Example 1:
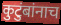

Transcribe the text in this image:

कुटुंबांनाच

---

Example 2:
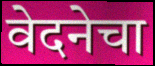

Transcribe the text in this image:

वेदनेचा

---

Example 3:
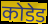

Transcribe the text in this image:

कोडेड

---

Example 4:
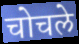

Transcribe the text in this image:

चोचले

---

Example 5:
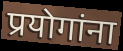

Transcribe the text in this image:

प्रयोगांना